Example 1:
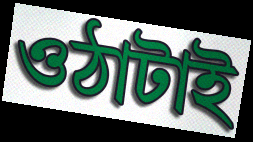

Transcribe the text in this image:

ওঠাটাই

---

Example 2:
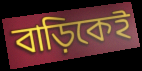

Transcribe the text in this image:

বাড়িকেই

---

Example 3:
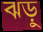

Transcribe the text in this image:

ঝড়ু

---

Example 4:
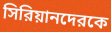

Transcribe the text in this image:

সিরিয়ানদেরকে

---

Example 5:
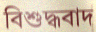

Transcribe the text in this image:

বিশুদ্ধবাদ